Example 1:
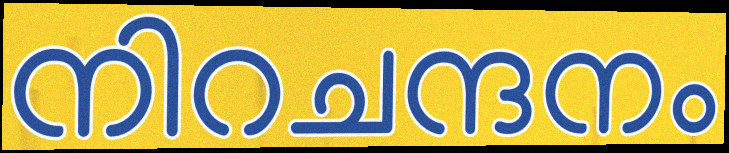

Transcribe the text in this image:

നിറചന്ദനം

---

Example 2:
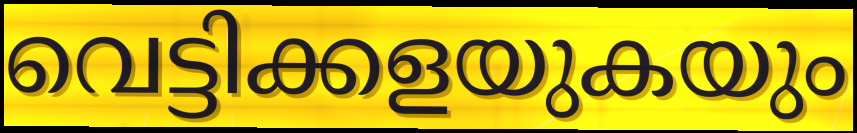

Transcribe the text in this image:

വെട്ടിക്കളയുകയും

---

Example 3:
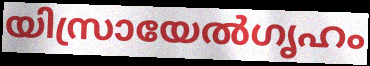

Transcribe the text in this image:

യിസ്രായേൽഗൃഹം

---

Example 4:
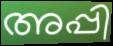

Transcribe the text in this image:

അപ്പി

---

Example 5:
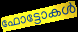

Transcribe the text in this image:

ഫോട്ടോകൾ